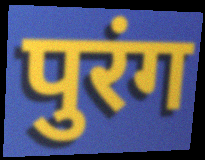
पुरंग